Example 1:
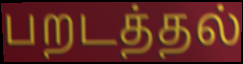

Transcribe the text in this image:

பறடத்தல்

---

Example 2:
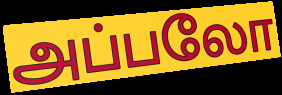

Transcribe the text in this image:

அப்பலோ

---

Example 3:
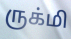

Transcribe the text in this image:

ருக்மி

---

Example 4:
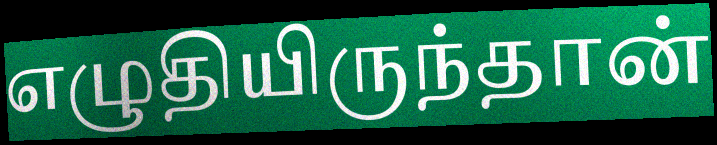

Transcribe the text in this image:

எழுதியிருந்தான்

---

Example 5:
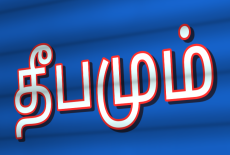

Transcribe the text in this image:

தீபமும்